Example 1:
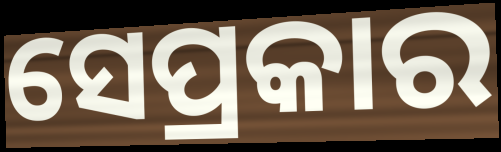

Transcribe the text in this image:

ସେପ୍ରକାର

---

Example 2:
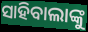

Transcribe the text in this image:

ସାହିବାଲାଙ୍କୁ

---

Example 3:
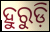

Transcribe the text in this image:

ହୁରୁଡ଼ି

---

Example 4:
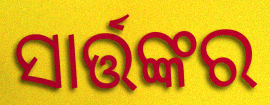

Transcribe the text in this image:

ସାର୍ତ୍ତଙ୍କର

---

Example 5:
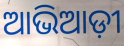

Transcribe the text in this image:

ଆଭିଆଡ଼ୀ